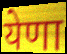
येणा